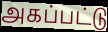
அகப்பட்டு